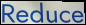
Reduce